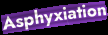
Asphyxiation